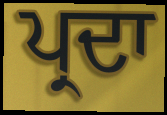
ਪ੍ਰਦਾ